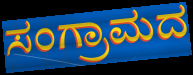
ಸಂಗ್ರಾಮದ